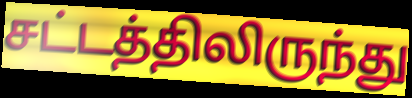
சட்டத்திலிருந்து